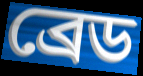
ব্ৰেড